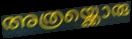
അത്രയ്ക്കൊരു